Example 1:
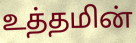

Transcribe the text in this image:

உத்தமின்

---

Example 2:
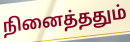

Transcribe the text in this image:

நினைத்ததும்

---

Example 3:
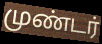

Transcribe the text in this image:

முண்டர்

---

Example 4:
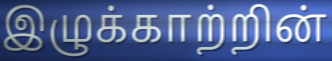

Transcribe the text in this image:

இழுக்காற்றின்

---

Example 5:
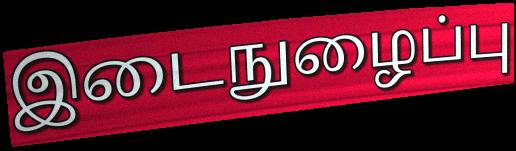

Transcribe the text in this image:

இடைநுழைப்பு